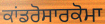
ਕਾਂਡਰੋਸਾਰਕੋਮਾ